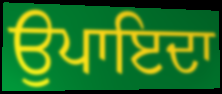
ਉਪਾਇਦਾ